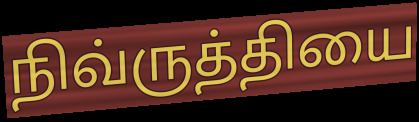
நிவ்ருத்தியை